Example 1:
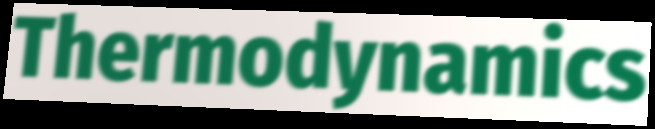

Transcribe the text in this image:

Thermodynamics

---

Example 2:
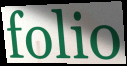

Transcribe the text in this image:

folio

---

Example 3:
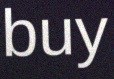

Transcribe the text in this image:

buy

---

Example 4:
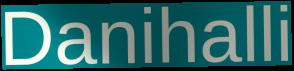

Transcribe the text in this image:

Danihalli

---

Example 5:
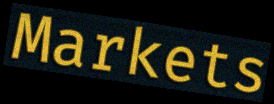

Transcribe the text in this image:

Markets